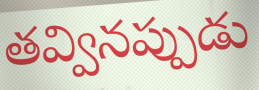
తవ్వినప్పుడు